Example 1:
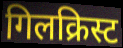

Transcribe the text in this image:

गिलक्रिस्ट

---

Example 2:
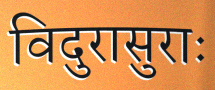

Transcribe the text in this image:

विदुरासुराः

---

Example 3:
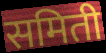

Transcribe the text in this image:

समिती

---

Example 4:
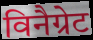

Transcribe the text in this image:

विनैग्रेट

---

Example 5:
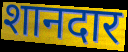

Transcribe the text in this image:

शानदार